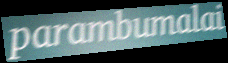
parambumalai